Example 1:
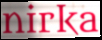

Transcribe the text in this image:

nirka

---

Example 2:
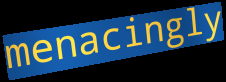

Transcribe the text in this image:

menacingly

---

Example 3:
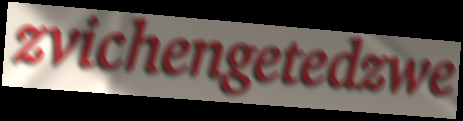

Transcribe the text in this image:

zvichengetedzwe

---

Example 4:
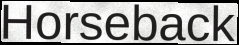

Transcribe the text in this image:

Horseback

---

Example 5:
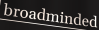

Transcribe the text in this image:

broadminded